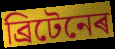
ব্ৰিটেনেৰ